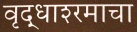
वृद्धाश्रमाचा